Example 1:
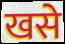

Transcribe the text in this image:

खसे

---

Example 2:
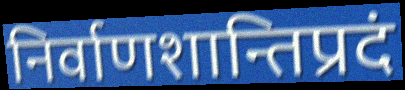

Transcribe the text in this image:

निर्वाणशान्तिप्रदं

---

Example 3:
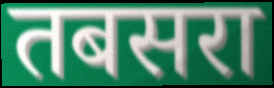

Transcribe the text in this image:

तबसरा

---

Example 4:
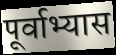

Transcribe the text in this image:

पूर्वाभ्यास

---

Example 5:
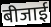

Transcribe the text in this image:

बीजाई